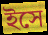
ইসে